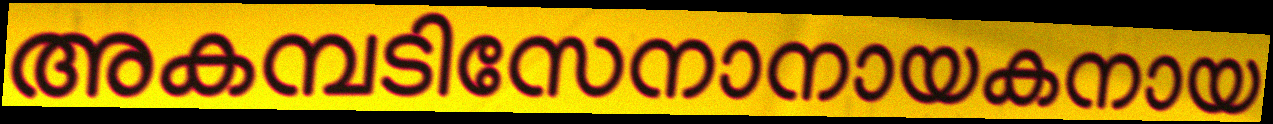
അകമ്പടിസേനാനായകനായ